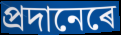
প্ৰদানেৰে